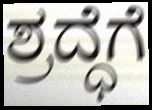
ಶ್ರದ್ಧೆಗೆ